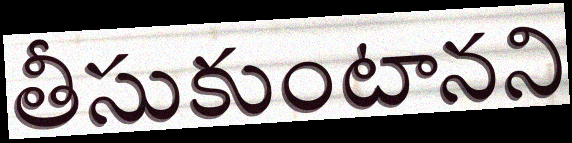
తీసుకుంటానని